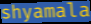
shyamala